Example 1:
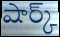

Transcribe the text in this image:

షార్క్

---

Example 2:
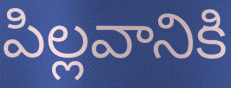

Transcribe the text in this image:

పిల్లవానికి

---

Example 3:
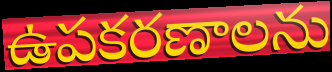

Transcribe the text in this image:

ఉపకరణాలను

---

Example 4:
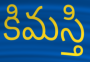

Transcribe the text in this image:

కిమస్తి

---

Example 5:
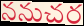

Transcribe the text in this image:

ననుచర